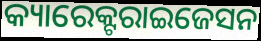
କ୍ୟାରେକ୍ଟରାଇଜେସନ